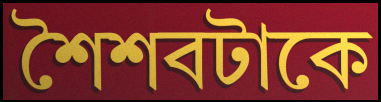
শৈশবটাকে